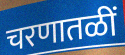
चरणातळीं